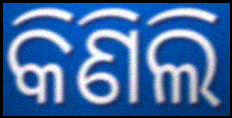
କିଣିଲି